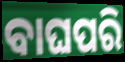
ବାଘପରି